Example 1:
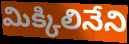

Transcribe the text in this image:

మిక్కిలినేని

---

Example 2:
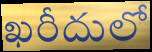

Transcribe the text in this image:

ఖరీదులో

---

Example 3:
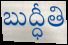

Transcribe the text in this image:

బుద్ధీతి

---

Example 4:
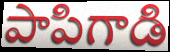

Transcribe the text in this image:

పాపిగాడి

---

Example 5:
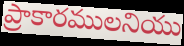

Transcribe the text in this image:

ప్రాకారములనియు